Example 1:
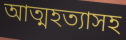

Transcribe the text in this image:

আত্মহত্যাসহ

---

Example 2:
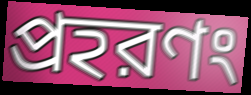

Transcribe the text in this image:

প্রহরণং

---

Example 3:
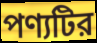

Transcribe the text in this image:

পণ্যটির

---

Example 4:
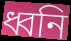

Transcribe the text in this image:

ধ্বনি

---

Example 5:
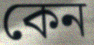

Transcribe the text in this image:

কেন